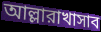
আল্লারাখাসাব